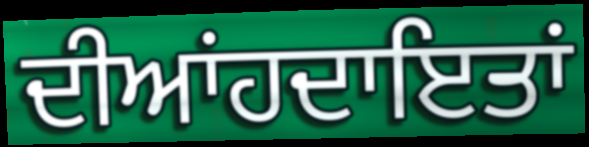
ਦੀਆਂਹਦਾਇਤਾਂ